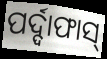
ପର୍ଦ୍ଦାଫାସ୍